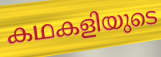
കഥകളിയുടെ